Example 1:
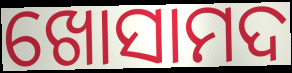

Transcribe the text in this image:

ଖୋସାମଦ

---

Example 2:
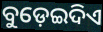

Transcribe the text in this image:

ବୁଡ଼େଇଦିଏ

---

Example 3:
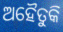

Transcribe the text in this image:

ଅହୈତୁକି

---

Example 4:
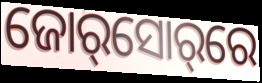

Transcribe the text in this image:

ଜୋର୍‌ସୋର୍‌ରେ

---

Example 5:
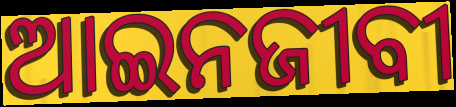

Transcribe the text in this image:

ଆଇନଜୀବୀ